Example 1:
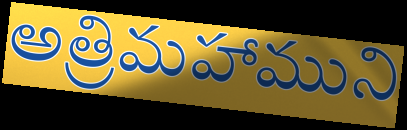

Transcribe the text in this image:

అత్రిమహాముని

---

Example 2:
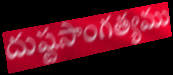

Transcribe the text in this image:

దుష్టసాంగత్యము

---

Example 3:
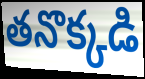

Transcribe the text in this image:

తనొక్కడి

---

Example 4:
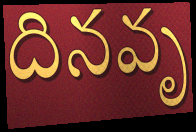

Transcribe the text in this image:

దినవృ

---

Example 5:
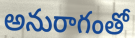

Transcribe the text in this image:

అనురాగంతో